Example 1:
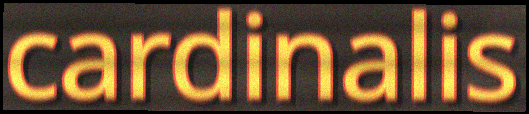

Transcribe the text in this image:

cardinalis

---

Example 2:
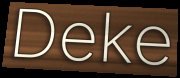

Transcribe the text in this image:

Deke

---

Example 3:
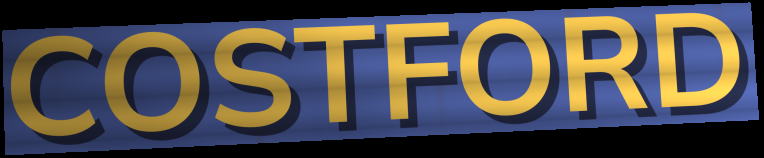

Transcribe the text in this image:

COSTFORD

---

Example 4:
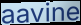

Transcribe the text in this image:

aavine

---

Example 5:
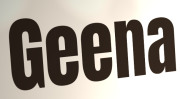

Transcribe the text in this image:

Geena